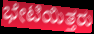
ಭೇಟಿಯಿತ್ತರು